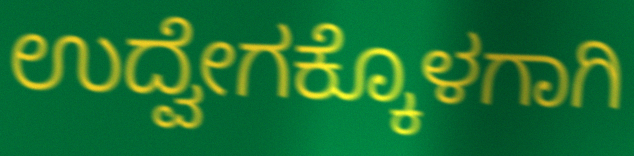
ಉದ್ವೇಗಕ್ಕೊಳಗಾಗಿ